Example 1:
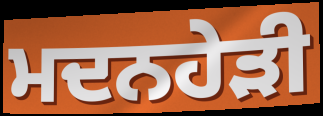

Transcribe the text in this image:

ਮਦਨਹੇੜੀ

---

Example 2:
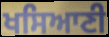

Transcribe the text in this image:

ਖਸਿਆਣੀ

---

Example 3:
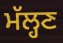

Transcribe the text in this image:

ਮੱਲ੍ਹਣ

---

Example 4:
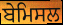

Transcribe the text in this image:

ਬੇਮਿਸਲ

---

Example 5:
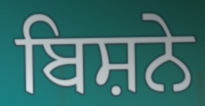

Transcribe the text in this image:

ਬਿਸ਼ਨੇ